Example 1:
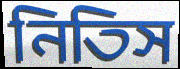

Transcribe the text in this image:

নিতিস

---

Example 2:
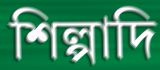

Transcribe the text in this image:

শিল্পাদি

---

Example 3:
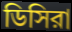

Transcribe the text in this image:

ডিসিরা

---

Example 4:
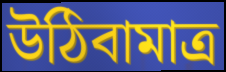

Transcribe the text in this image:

উঠিবামাত্র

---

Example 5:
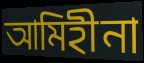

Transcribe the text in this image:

আমিহীনা